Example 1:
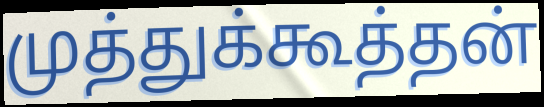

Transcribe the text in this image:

முத்துக்கூத்தன்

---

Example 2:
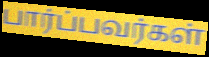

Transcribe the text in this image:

பார்ப்பவர்கள்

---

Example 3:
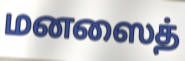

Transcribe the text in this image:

மனஸைத்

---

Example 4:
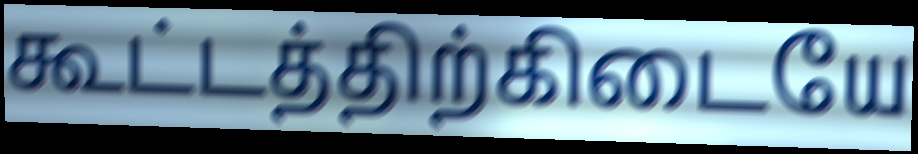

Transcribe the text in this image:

கூட்டத்திற்கிடையே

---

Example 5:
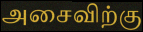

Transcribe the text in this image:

அசைவிற்கு